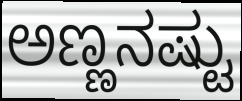
ಅಣ್ಣನಷ್ಟು